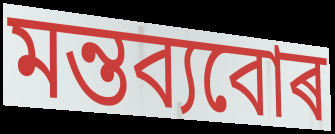
মন্তব্যবোৰ